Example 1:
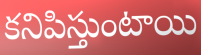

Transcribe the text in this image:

కనిపిస్తుంటాయి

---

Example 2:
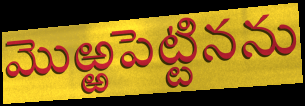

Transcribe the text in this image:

మొఱ్ఱపెట్టినను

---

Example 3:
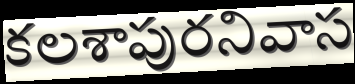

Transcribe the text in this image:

కలశాపురనివాస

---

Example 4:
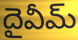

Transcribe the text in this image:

దైవీమ్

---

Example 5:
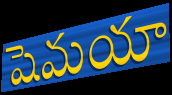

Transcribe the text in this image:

షెమయా